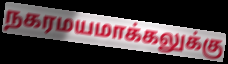
நகரமயமாக்கலுக்கு